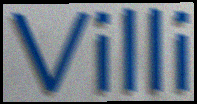
Villi